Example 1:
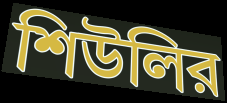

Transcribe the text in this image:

শিউলির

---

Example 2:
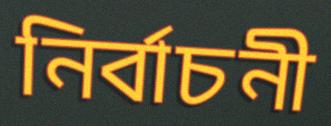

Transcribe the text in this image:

নির্বাচনী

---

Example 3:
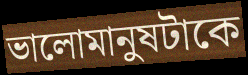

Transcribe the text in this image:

ভালোমানুষটাকে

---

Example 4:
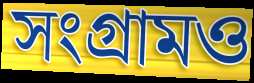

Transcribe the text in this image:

সংগ্রামও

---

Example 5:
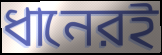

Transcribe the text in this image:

ধানেরই